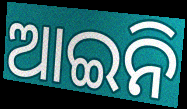
ଆଇନି